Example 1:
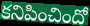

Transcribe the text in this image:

కనిపించిందో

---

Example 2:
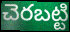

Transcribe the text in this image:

చెరబట్టి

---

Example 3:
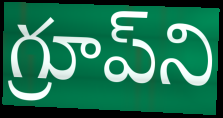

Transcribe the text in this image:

గ్రూప్‌ని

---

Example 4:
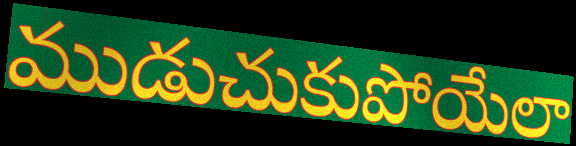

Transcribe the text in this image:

ముడుచుకుపోయేలా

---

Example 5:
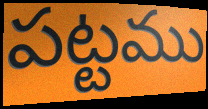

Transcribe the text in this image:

పట్టము